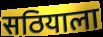
सठियाला